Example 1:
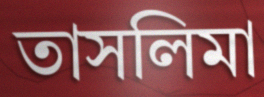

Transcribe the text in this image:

তাসলিমা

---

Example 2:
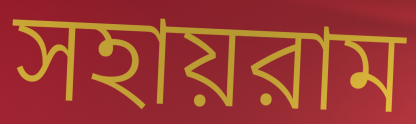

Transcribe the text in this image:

সহায়রাম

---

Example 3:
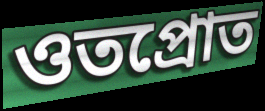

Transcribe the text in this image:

ওতপ্রোত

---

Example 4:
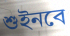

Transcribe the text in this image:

শুইনবে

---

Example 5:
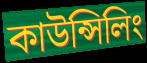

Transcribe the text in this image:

কাউন্সিলিং